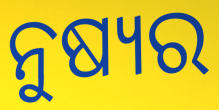
ନୁଷ୍ୟର